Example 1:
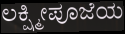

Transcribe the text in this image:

ಲಕ್ಷ್ಮೀಪೂಜೆಯ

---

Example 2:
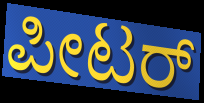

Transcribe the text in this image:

ಪೀಟರ್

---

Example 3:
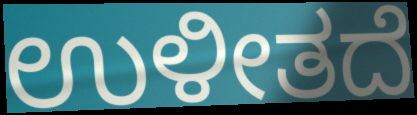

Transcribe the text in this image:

ಉಳೀತದೆ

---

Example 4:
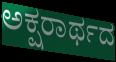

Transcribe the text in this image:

ಅಕ್ಷರಾರ್ಥದ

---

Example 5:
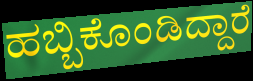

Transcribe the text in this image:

ಹಬ್ಬಿಕೊಂಡಿದ್ದಾರೆ